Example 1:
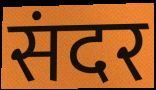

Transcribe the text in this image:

संदर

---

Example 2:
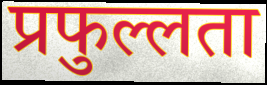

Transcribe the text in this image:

प्रफुल्लता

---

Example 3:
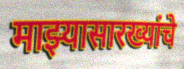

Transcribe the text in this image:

माझ्यासारख्यांचे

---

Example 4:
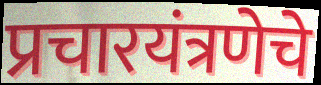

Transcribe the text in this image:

प्रचारयंत्रणेचे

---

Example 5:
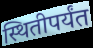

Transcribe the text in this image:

स्थितीपर्यंत